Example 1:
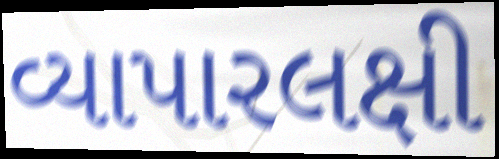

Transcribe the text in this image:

વ્યાપારલક્ષી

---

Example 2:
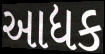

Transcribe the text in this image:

આદ્યક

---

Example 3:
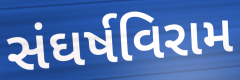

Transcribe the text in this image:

સંઘર્ષવિરામ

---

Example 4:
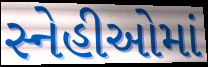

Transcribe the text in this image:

સ્નેહીઓમાં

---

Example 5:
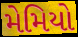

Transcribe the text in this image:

મેમિયો